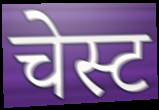
चेस्ट